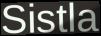
Sistla